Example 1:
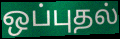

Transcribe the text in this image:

ஒப்புதல்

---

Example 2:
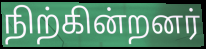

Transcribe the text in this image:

நிற்கின்றனர்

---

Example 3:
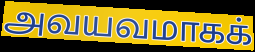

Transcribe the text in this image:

அவயவமாகக்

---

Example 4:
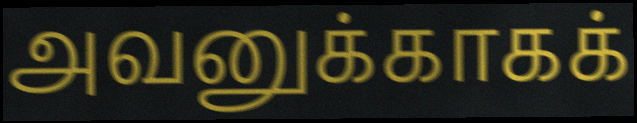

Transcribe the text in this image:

அவனுக்காகக்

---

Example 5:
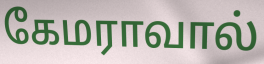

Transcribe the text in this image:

கேமராவால்